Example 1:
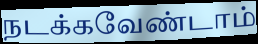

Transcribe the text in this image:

நடக்கவேண்டாம்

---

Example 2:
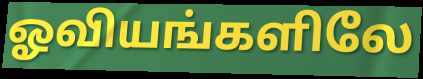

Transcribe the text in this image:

ஓவியங்களிலே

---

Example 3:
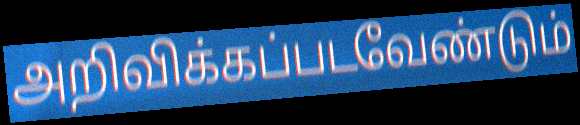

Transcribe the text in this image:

அறிவிக்கப்படவேண்டும்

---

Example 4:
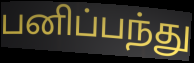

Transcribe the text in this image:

பனிப்பந்து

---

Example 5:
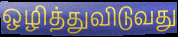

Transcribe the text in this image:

ஒழித்துவிடுவது